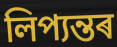
লিপ্যন্তৰ